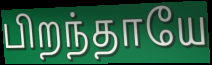
பிறந்தாயே